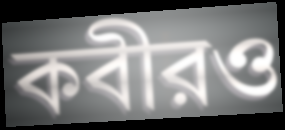
কবীরও